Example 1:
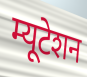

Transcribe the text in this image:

म्यूटेशन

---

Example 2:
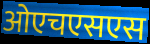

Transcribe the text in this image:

ओएचएसएस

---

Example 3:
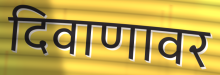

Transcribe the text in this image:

दिवाणावर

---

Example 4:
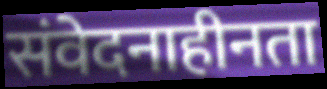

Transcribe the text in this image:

संवेदनाहीनता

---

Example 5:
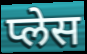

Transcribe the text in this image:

प्लेस